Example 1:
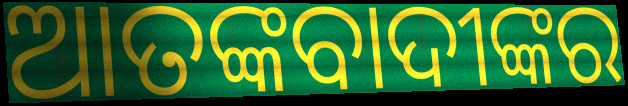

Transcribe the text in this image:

ଆତଙ୍କବାଦୀଙ୍କର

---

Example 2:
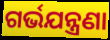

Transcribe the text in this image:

ଗର୍ଭଯନ୍ତ୍ରଣା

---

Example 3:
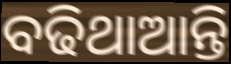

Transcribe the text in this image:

ବଢିଥାଆନ୍ତି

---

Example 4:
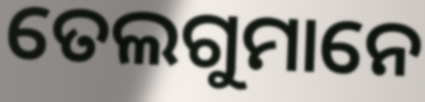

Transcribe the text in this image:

ତେଲଗୁମାନେ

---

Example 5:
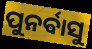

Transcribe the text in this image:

ପୁନର୍ଵାସୁ